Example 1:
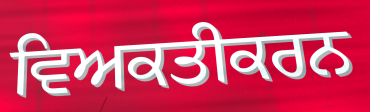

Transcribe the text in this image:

ਵਿਅਕਤੀਕਰਨ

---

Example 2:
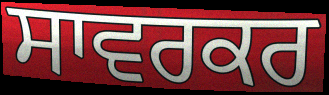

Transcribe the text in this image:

ਸਾਵਰਕਰ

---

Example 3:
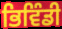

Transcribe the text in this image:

ਭਿਵਿੰਡੀ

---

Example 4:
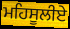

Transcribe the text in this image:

ਮਹਿਸੂਲੀਏ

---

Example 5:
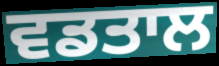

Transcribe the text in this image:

ਵਡਤਾਲ